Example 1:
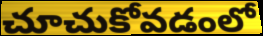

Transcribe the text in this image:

చూచుకోవడంలో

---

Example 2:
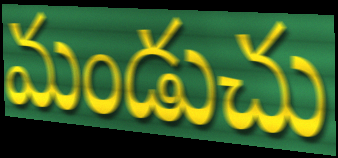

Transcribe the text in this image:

మండుచు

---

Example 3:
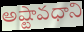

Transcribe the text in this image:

అష్టావధాని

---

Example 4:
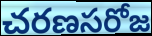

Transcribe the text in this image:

చరణసరోజ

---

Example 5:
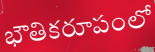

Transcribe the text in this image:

భౌతికరూపంలో